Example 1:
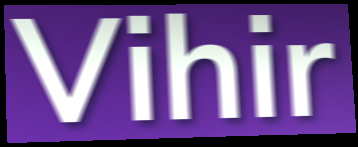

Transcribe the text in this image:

Vihir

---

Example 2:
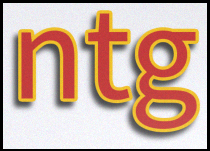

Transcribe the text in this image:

ntg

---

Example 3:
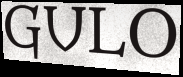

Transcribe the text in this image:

GULO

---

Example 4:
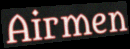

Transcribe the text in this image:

Airmen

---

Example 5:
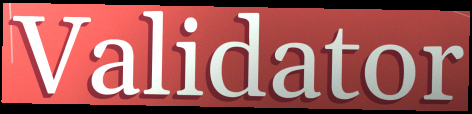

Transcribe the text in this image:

Validator